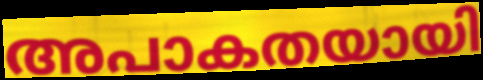
അപാകതയായി